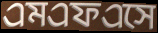
এমএফএসে